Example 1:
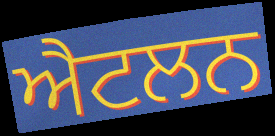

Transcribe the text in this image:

ਐਟਲਨ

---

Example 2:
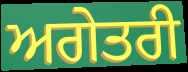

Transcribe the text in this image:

ਅਗੇਤਰੀ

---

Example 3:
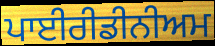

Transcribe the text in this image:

ਪਾਈਰੀਡੀਨੀਅਮ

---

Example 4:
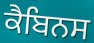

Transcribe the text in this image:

ਕੈਬਿਨਸ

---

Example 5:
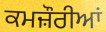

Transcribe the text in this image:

ਕਮਜ਼ੌਰੀਆਂ